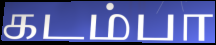
கடம்பா